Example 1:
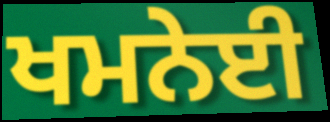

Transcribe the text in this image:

ਖਮਨੇਈ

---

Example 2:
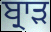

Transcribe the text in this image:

ਬ੍ਰਾੜ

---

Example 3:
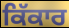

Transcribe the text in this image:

ਕਿੱਕਾਰ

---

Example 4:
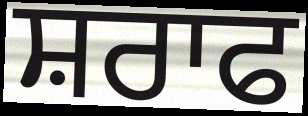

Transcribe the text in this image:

ਸ਼ਰਾਫ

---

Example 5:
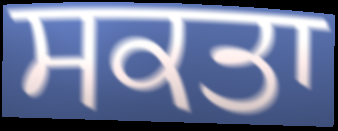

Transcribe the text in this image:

ਸਕਤਾ